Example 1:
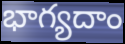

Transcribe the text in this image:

భాగ్యదాం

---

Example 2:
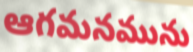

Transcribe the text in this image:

ఆగమనమును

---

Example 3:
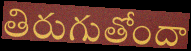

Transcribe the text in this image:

తిరుగుతోందా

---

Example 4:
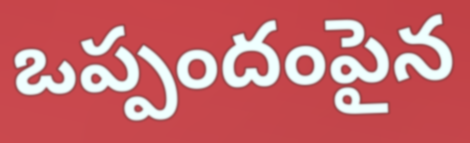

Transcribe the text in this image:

ఒప్పందంపైన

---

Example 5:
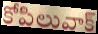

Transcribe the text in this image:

కోపిలువాక్